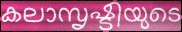
കലാസൃഷ്ടിയുടെ